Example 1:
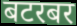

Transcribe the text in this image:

बटरबर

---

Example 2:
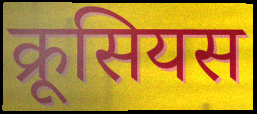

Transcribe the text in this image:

क्रूसियस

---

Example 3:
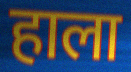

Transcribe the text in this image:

हाला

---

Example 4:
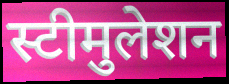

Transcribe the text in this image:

स्टीमुलेशन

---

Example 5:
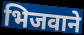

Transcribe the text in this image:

भिजवाने